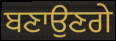
ਬਣਾਉਣਗੇ